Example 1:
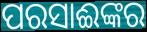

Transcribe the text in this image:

ପରସାଈଙ୍କର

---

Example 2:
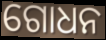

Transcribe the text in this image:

ଗୋଧନ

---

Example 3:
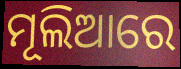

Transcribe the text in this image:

ମୂଲିଆରେ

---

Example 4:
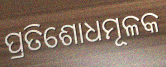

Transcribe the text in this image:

ପ୍ରତିଶୋଧମୂଳକ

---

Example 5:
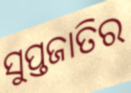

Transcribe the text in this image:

ସୁପ୍ତଜାତିର